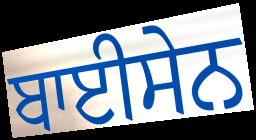
ਬਾਈਸੇਨ